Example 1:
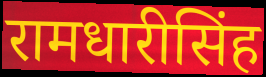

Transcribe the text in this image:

रामधारीसिंह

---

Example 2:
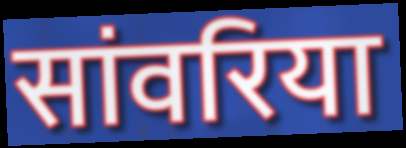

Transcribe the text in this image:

सांवरिया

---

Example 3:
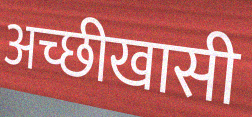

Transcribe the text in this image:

अच्छीखासी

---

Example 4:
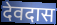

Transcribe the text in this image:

देवदास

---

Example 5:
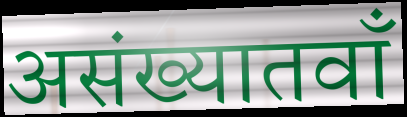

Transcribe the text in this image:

असंख्यातवाँ